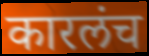
कारलंच